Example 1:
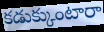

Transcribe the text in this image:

కడుక్కుంటారా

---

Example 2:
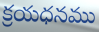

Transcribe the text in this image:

క్రయధనము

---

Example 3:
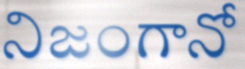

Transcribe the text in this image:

నిజంగానో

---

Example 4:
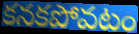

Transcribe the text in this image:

కనకపోవటం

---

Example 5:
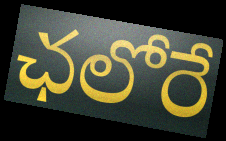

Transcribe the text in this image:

ఛలోరే